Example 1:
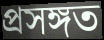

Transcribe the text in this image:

প্রসঙ্গত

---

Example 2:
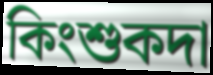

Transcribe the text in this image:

কিংশুকদা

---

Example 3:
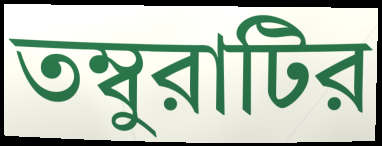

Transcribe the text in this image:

তম্বুরাটির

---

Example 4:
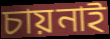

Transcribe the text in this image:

চায়নাই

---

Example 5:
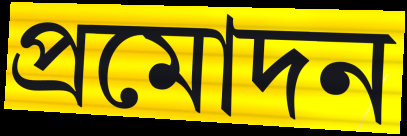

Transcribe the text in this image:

প্রমোদন